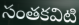
సంతకవిటి